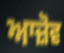
ਆਜ਼ੋਵ